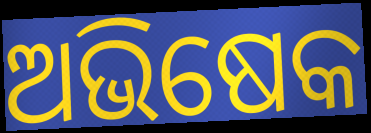
ଅଭିଷେକ